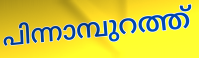
പിന്നാമ്പുറത്ത്